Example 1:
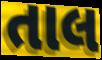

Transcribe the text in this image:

તાલ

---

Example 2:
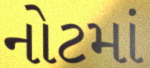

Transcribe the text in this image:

નોટમાં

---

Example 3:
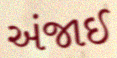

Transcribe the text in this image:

અંજાઈ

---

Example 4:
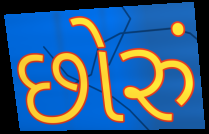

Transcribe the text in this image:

છોરું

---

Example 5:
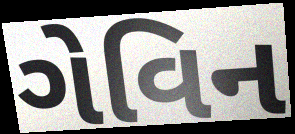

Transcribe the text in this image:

ગેવિન